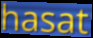
hasat